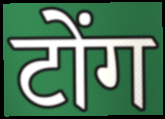
टोंग